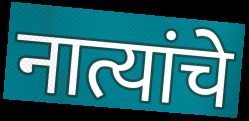
नात्यांचे